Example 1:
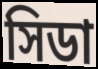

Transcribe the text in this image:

সিডা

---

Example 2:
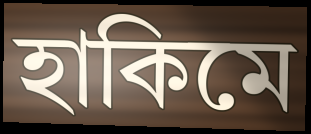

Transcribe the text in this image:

হাকিমে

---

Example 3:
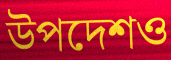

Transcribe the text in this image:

উপদেশও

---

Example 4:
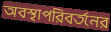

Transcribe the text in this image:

অবস্থাপরিবর্তনের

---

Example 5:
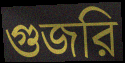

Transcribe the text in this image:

গুজরি